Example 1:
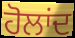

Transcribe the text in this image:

ਹੋਲਾਂਦ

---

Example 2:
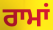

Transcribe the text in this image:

ਰਾਮਾਂ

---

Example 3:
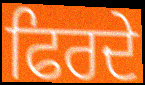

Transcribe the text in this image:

ਫਿਰਦੇ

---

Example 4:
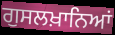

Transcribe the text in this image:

ਗੁਸਲਖ਼ਾਨਿਆਂ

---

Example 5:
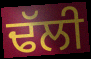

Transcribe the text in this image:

ਢੱਲੀ